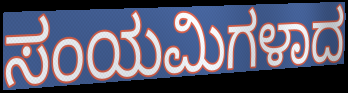
ಸಂಯಮಿಗಳಾದ